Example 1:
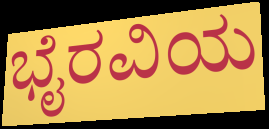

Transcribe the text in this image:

ಭೈರವಿಯ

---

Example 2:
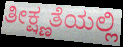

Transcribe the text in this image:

ತೀಕ್ಷ್ಣತೆಯಲ್ಲಿ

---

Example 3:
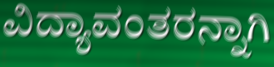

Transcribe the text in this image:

ವಿದ್ಯಾವಂತರನ್ನಾಗಿ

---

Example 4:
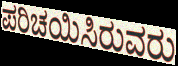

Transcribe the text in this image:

ಪರಿಚಯಿಸಿರುವರು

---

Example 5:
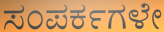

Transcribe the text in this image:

ಸಂಪರ್ಕಗಳೇ